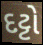
દટ્ટો